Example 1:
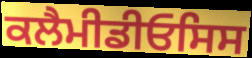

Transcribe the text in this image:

ਕਲੈਮੀਡੀਓਸਿਸ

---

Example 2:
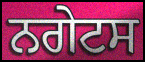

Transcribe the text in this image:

ਨਗੇਟਸ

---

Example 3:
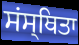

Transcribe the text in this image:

ਸਂਸ੍ਥਿਤਾ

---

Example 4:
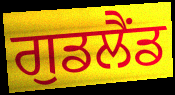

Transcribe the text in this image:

ਗੁਡਲੈਂਡ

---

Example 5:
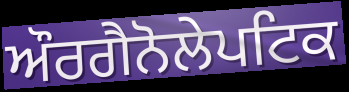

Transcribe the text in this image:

ਔਰਗੈਨੋਲੇਪਟਿਕ